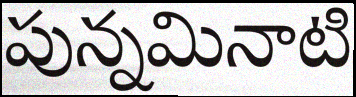
పున్నమినాటి